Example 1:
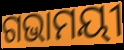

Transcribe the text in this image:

ଗଭାମୟୀ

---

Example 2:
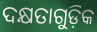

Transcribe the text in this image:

ଦକ୍ଷତାଗୁଡ଼ିକ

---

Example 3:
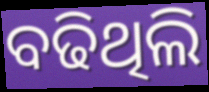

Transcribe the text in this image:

ବଢିଥିଲି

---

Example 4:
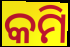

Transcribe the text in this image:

କମି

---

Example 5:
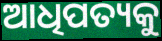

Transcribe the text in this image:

ଆଧିପତ୍ୟକୁ